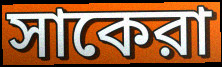
সাকেরা